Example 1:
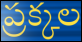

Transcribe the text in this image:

ప్రక్కల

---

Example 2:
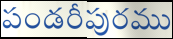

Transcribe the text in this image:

పండరీపురము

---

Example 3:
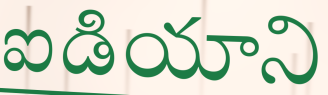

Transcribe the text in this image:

ఐడియాని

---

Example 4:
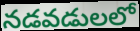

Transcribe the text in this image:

నడవడులలో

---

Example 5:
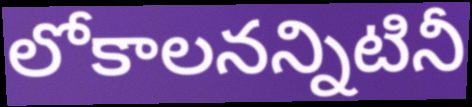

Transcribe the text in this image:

లోకాలనన్నిటినీ